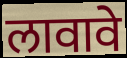
लावावे